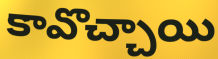
కావొచ్చాయి